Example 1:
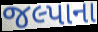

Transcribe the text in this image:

જલ્પાના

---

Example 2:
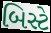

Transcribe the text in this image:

બિસ્ટે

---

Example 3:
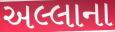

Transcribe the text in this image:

અલ્લાના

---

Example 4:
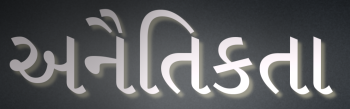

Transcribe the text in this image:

અનૈતિકતા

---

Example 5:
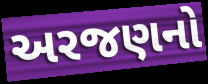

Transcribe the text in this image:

અરજણનો